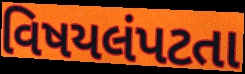
વિષયલંપટતા